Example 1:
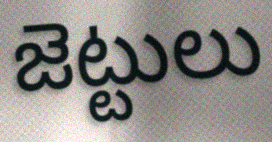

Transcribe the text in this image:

జెట్టులు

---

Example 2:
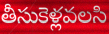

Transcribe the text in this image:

తీసుకెళ్లవలసి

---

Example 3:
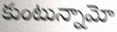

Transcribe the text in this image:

కుంటున్నామో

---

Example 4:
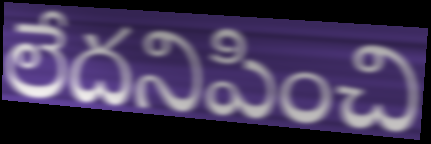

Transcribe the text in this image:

లేదనిపించి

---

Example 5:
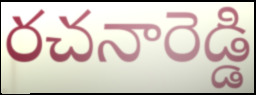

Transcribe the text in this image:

రచనారెడ్డి